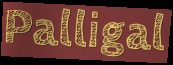
Palligal